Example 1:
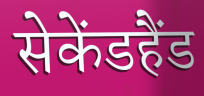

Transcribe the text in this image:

सेकेंडहैंड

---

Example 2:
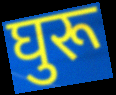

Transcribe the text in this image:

घुरू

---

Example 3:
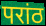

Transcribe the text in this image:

परांठ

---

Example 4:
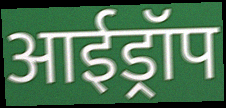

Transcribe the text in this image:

आईड्रॉप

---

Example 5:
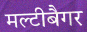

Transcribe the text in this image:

मल्‍टीबैगर